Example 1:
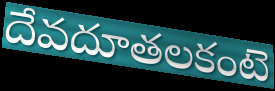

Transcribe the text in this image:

దేవదూతలకంటె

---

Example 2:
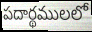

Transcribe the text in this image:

పదార్థములలో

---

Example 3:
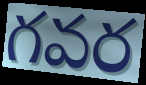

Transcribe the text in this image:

గవర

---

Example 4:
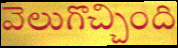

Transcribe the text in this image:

వెలుగొచ్చింది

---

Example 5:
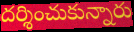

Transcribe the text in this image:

దర్శించుకున్నారు